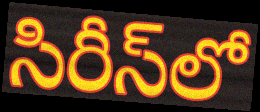
సిరీస్‌లో